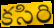
కసిరి